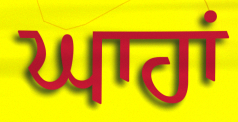
ਘਾਹਾਂ